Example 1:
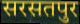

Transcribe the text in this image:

सरसतपुर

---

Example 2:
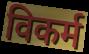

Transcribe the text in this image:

विकर्म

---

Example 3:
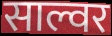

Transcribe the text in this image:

साल्वर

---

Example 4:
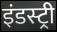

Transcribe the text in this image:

इंडस्‍ट्री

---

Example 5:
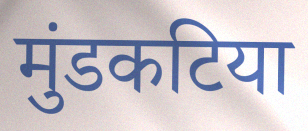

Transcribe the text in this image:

मुंडकटिया